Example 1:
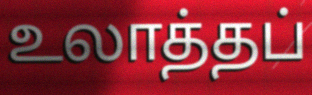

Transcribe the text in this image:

உலாத்தப்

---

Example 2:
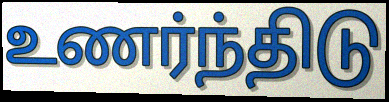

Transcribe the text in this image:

உணர்ந்திடு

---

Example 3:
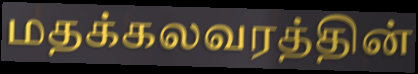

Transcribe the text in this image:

மதக்கலவரத்தின்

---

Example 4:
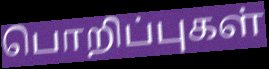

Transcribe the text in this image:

பொறிப்புகள்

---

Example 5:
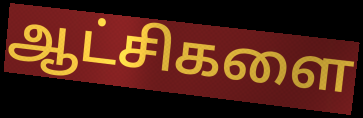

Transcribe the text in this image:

ஆட்சிகளை